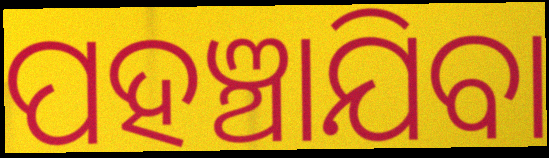
ପହଞ୍ଚାଯିବା